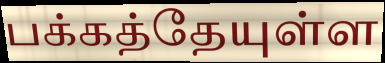
பக்கத்தேயுள்ள